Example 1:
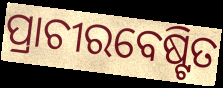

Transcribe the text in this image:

ପ୍ରାଚୀରବେଷ୍ଟିତ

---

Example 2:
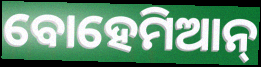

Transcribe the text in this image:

ବୋହେମିଆନ୍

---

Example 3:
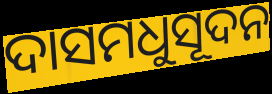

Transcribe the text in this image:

ଦାସମଧୁସୂଦନ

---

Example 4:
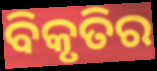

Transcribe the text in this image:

ବିକୃତିର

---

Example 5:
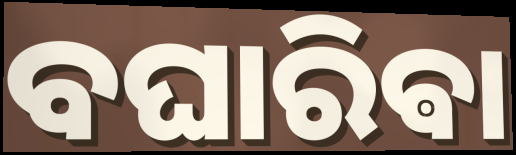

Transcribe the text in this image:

ବଘାରିଵା